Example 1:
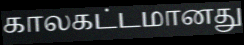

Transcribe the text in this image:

காலகட்டமானது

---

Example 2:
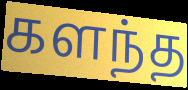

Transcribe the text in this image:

களந்த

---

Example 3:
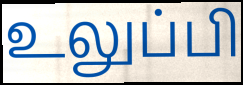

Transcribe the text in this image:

உலுப்பி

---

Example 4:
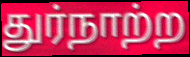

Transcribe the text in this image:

துர்நாற்ற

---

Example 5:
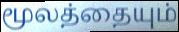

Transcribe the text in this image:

மூலத்தையும்